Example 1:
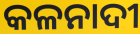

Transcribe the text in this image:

କଳନାଦୀ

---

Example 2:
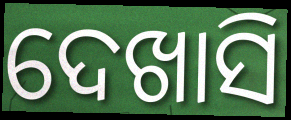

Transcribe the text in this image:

ଦେଖାସି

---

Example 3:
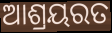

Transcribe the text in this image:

ଆଶ୍ରୟରତ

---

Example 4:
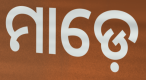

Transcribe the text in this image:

ମାଡ଼େ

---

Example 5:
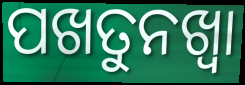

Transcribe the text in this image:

ପଖତୁନଖ୍ୱା